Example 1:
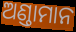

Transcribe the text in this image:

ଅଣ୍ଡାମାନ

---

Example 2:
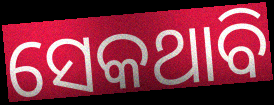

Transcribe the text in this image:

ସେକଥାବି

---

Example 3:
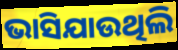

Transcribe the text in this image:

ଭାସିଯାଉଥିଲି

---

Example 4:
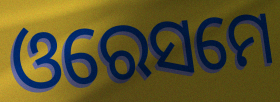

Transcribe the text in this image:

ଓରେସମେ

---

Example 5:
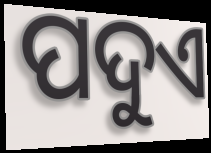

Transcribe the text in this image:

ପଦୁଏ